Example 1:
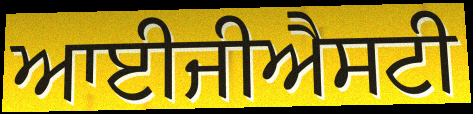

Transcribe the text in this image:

ਆਈਜੀਐਸਟੀ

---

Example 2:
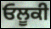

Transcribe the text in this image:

ਓਲੂਕੀ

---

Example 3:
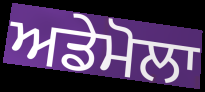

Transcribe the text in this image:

ਅਡੇਮੋਲਾ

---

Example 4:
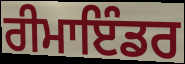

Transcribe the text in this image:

ਰੀਮਾਇੰਡਰ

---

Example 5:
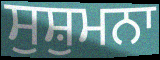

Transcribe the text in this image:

ਸੁਸ਼ੁਮਨਾ